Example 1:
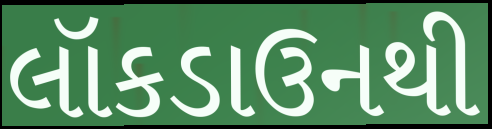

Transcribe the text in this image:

લૉકડાઉનથી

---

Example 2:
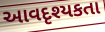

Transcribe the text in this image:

આવદૃશ્યકતા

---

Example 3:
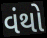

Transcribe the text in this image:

વંથો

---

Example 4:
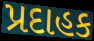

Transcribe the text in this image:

પ્રદાહક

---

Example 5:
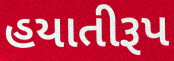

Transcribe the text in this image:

હયાતીરૂપ